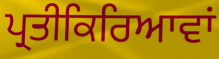
ਪ੍ਰਤੀਕਿਰਿਆਵਾਂ